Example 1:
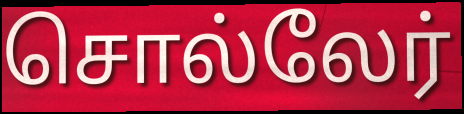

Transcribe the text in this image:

சொல்லேர்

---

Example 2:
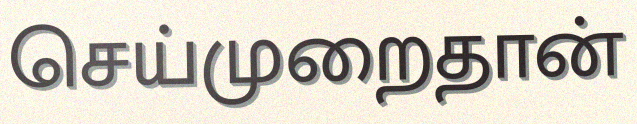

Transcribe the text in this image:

செய்முறைதான்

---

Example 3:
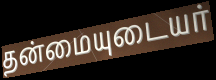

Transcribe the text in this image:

தன்மையுடையர்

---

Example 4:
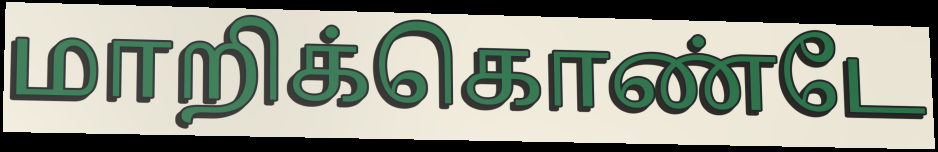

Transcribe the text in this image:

மாறிக்கொண்டே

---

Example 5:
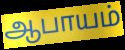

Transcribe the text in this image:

ஆபாயம்